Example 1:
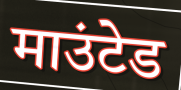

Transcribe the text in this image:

माउंटेड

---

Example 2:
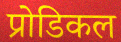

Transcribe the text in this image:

प्रोडिकल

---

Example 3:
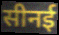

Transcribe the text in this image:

सीनई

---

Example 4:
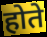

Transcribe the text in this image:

होते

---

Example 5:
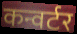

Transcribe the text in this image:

कन्वर्टर